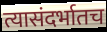
त्यासंदर्भातच